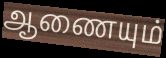
ஆணையும்